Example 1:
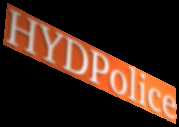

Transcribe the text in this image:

HYDPolice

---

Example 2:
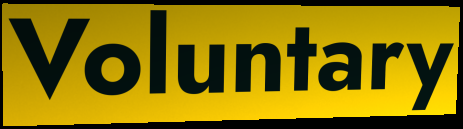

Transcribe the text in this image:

Voluntary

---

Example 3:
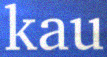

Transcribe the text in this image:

kau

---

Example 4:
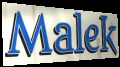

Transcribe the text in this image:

Malek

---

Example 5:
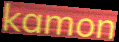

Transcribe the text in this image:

kamon